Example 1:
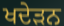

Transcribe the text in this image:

ਖਦੇੜਨ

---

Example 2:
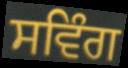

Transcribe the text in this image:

ਸਵਿੰਗ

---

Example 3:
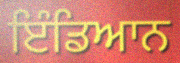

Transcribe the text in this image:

ਇੰਡਿਆਨ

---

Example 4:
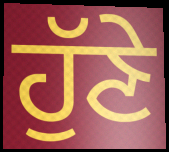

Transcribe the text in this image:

ਹੁੱਣੇ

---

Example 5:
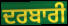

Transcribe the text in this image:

ਦਰਬਾਰੀ